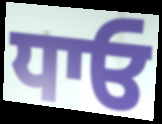
ਧਾਓ